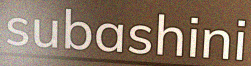
subashini